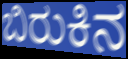
ಬಿರುಕಿನ